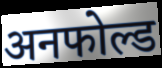
अनफोल्ड